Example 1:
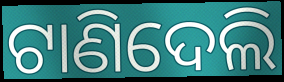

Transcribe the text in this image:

ଟାଣିଦେଲି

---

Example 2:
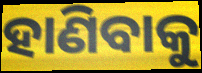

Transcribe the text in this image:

ହାଣିବାକୁ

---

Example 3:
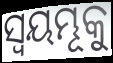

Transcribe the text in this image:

ସ୍ଵୟମ୍ଭୂକୁ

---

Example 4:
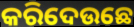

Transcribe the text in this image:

କରିଦେଉଛେ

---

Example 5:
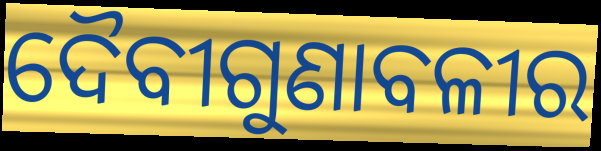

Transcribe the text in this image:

ଦୈବୀଗୁଣାବଳୀର